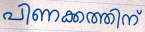
പിണക്കത്തിന്